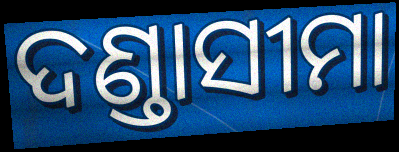
ଦଣ୍ଡାସୀମା